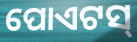
ପୋଏଟସ୍